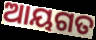
ଆୟଗତ